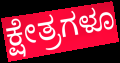
ಕ್ಷೇತ್ರಗಳೂ